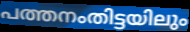
പത്തനംതിട്ടയിലും